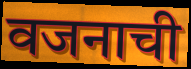
वजनाची